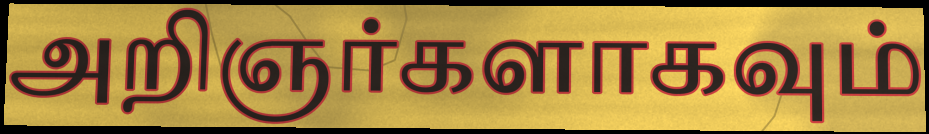
அறிஞர்களாகவும்